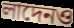
লাদেনও